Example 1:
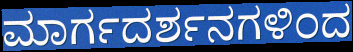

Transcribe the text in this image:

ಮಾರ್ಗದರ್ಶನಗಳಿಂದ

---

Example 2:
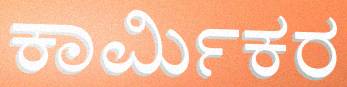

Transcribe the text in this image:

ಕಾರ್ಮಿಕರ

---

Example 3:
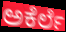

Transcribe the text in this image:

ಅಕೆರ್ಲೆ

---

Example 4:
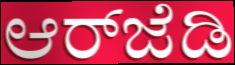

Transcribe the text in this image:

ಆರ್‌ಜೆಡಿ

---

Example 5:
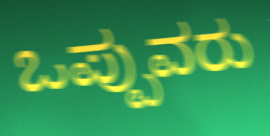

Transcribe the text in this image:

ಒಪ್ಪುವರು